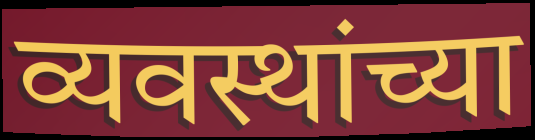
व्यवस्थांच्या